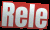
Rele